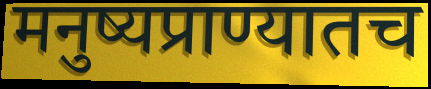
मनुष्यप्राण्यातच